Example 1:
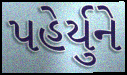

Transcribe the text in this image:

પહેર્યુને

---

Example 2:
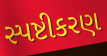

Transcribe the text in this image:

સ્પષ્ટીકરણ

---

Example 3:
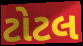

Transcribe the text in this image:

ટોટલ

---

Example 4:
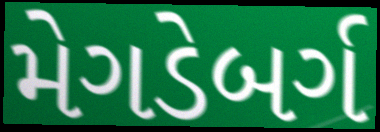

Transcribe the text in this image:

મેગડેબર્ગ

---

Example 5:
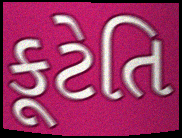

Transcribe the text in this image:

કૂટેતિ